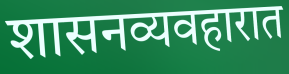
शासनव्यवहारात